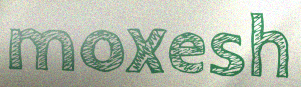
moxesh